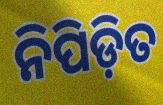
ନିପିଡ଼ିତ